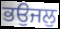
ਭਉਜਲੁ